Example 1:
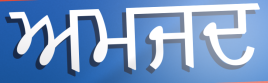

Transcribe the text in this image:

ਅਮਜਦ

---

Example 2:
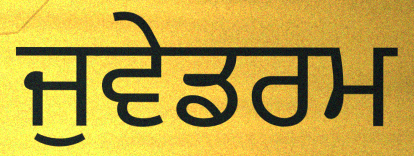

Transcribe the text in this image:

ਜੁਵੇਡਰਮ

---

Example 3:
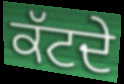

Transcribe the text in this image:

ਕੱਟਦੇ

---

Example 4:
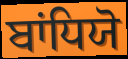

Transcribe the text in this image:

ਬਾਂਧਿਯੋ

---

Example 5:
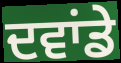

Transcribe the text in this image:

ਦਵਾਂਡੇ